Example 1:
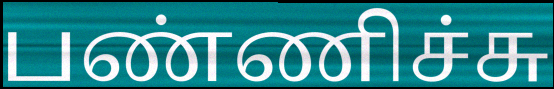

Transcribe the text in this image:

பண்ணிச்சு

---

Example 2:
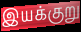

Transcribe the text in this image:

இயக்குறு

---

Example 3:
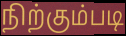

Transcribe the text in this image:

நிற்கும்படி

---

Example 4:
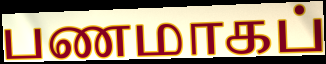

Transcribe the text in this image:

பணமாகப்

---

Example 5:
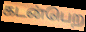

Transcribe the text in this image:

கடன்பெற